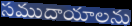
సముదాయాలను